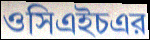
ওসিএইচএর